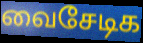
வைசேடிக